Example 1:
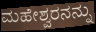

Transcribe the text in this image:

ಮಹೇಶ್ವರನನ್ನು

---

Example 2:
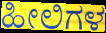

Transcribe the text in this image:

ಹೀಲಿಗಳ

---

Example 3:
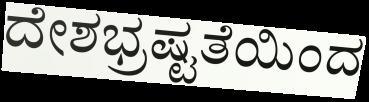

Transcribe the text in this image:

ದೇಶಭ್ರಷ್ಟತೆಯಿಂದ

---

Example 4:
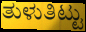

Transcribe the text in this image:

ತುಳುತಿಟ್ಟು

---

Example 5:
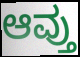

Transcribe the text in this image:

ಆವ್ತು